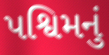
પશ્વિમનું